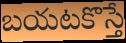
బయటకొస్తే